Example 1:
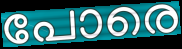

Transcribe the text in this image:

പോരെ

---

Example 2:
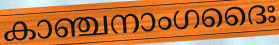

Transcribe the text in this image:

കാഞ്ചനാംഗദൈഃ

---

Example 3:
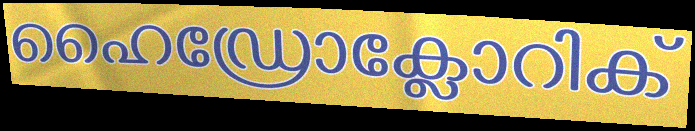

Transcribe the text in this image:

ഹൈഡ്രോക്ലോറിക്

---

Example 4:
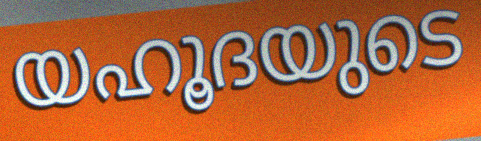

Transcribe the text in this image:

യഹൂദയുടെ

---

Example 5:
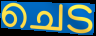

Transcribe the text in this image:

ചെട